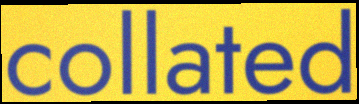
collated